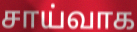
சாய்வாக